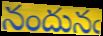
నందునఁ